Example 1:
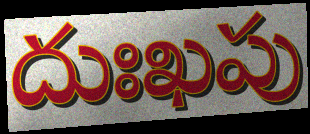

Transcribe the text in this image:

దుఃఖపు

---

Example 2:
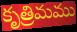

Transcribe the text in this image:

కృత్రిమము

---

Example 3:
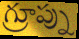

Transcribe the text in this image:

గ్రూప్ను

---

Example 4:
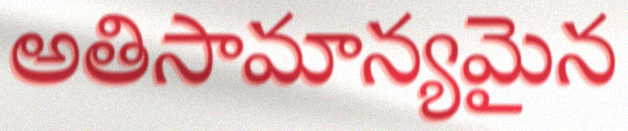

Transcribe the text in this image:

అతిసామాన్యమైన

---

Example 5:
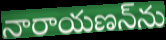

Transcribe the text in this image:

నారాయణన్‌ను